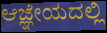
ಆಜ್ಞೇಯದಲ್ಲಿ